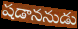
షడాననుడు